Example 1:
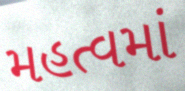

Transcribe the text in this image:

મહત્વમાં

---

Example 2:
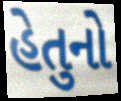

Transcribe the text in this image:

હેતુનો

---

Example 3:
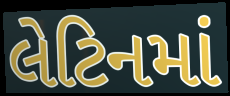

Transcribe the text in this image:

લેટિનમાં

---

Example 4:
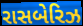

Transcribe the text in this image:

રાસબેરિઝ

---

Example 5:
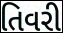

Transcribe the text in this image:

તિવરી